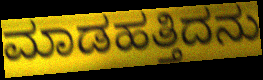
ಮಾಡಹತ್ತಿದನು